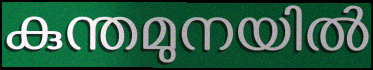
കുന്തമുനയിൽ